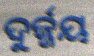
ଦୁର୍ଜ୍ଜୟ